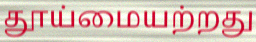
தூய்மையற்றது